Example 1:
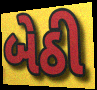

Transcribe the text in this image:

બેઠી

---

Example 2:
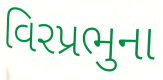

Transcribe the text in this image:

વિરપ્રભુના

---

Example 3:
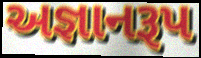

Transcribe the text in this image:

અજ્ઞાનરૂપ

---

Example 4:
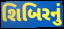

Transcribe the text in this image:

શિબિરનું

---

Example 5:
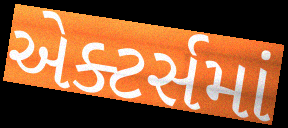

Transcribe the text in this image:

એક્ટર્સમાં